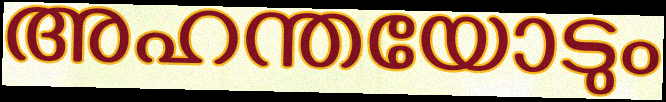
അഹന്തയോടും